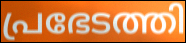
പ്രഭേടത്തി